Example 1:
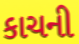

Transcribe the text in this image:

કાચની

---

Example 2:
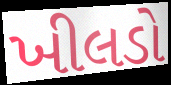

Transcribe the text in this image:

ખીલડો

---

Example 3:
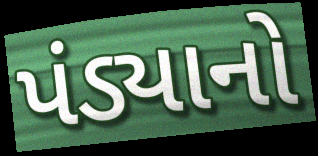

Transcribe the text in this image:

પંડ્યાનો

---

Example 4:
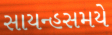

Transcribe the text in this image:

સાયન્હસમયે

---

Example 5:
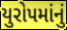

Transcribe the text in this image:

યુરોપમાંનું